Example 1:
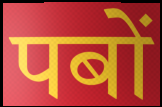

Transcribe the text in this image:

पबों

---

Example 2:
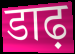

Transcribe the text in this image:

डाढ़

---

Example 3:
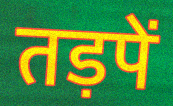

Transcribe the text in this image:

तड़पें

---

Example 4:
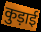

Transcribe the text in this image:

कुड़ाई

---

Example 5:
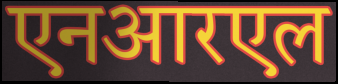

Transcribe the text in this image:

एनआरएल